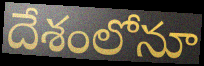
దేశంలోనూ